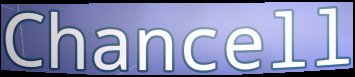
Chancell